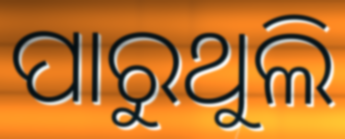
ପାରୁଥୁଲି